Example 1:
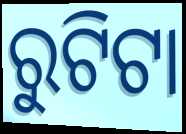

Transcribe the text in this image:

ରୁଟିଟା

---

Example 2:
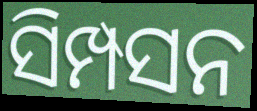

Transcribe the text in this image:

ସିମ୍ପସନ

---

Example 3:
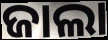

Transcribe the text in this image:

ଜାଲା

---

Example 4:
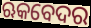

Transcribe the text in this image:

ଋକବେଦର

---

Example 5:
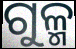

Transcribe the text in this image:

ଗୁଳ୍ମ